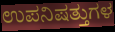
ಉಪನಿಷತ್ತುಗಳ